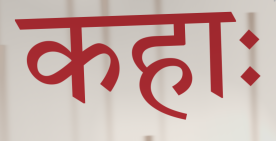
कहाः